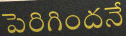
పెరిగిందనే